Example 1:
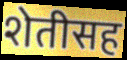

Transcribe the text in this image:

शेतीसह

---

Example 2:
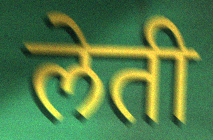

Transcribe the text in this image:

लेती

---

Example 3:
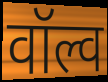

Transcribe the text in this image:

वॉल्व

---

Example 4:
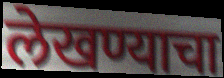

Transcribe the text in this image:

लेखण्याचा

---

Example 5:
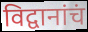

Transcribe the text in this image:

विद्वानांचं